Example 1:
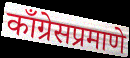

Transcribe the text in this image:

काँग्रेसप्रमाणे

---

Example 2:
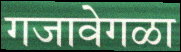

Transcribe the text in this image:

गजावेगळा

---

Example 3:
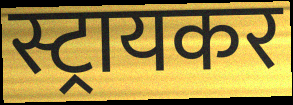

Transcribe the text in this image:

स्ट्रायकर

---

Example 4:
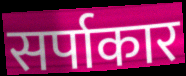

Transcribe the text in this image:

सर्पाकार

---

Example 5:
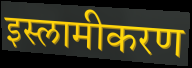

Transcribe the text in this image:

इस्लामीकरण